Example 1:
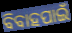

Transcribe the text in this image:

ବିବାହପାଇଁ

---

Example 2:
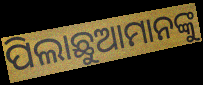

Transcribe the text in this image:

ପିଲାଛୁଆମାନଙ୍କୁ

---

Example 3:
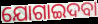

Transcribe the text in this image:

ଯୋଗାଇଦବା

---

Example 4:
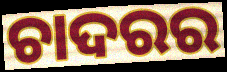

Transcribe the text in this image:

ଚାଦରର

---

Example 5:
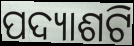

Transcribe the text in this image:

ପଦ୍ୟାଶଟି